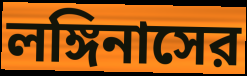
লঙ্গিনাসের